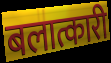
बलात्कारी